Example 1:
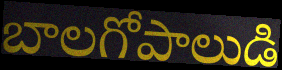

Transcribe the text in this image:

బాలగోపాలుడి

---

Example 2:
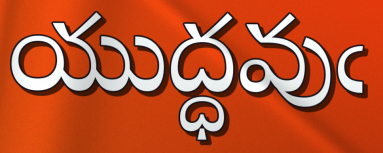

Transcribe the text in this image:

యుద్ధవుఁ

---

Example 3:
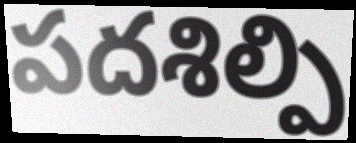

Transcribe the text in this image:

పదశిల్పి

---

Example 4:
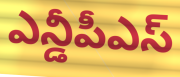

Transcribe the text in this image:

ఎన్డీపీఎస్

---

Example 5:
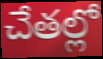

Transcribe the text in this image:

చేతల్లో